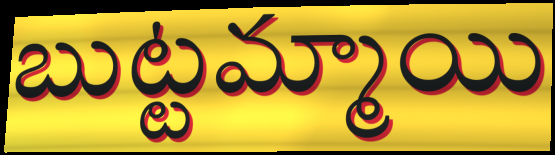
బుట్టమ్మాయి